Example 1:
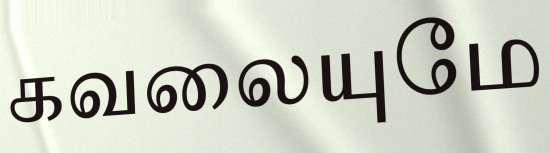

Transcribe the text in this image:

கவலையுமே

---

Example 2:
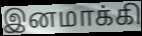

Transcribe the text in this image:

இனமாக்கி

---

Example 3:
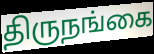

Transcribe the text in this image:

திருநங்கை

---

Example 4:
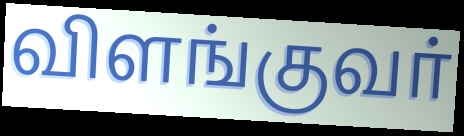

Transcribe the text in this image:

விளங்குவர்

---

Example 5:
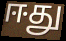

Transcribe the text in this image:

ஈது